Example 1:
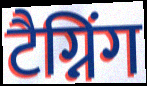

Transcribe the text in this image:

टैग्निंग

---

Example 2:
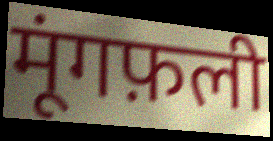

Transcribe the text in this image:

मूंगफ़ली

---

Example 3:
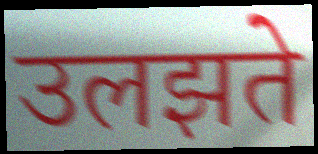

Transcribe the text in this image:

उलझते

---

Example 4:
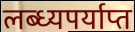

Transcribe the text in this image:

लब्ध्यपर्याप्त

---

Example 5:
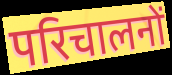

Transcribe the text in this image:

परिचालनों